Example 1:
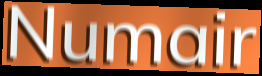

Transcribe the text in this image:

Numair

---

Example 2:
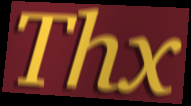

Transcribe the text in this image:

Thx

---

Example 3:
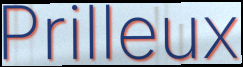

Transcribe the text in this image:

Prilleux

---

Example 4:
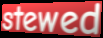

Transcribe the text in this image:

stewed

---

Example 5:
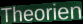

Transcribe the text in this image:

Theorien